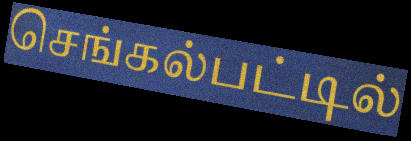
செங்கல்பட்டில்